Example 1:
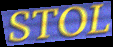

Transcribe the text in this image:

STOL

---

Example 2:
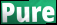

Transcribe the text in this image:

Pure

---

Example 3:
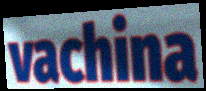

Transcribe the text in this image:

vachina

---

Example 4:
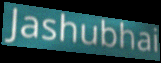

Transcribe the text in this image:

Jashubhai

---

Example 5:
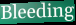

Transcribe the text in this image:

Bleeding